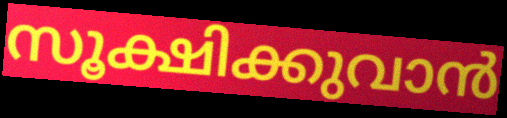
സൂക്ഷിക്കുവാൻ